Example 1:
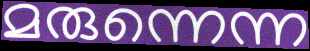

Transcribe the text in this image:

മരുന്നെന്ന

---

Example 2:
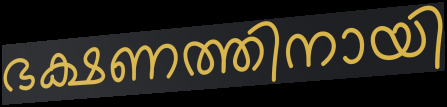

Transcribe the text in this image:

ഭക്ഷണത്തിനായി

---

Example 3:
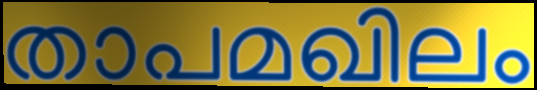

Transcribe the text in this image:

താപമഖിലം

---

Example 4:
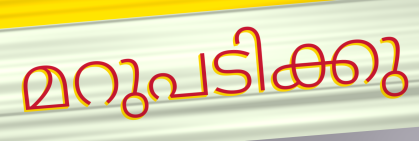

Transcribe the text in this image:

മറുപടിക്കു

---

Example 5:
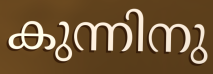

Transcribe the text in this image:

കുന്നിനു